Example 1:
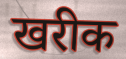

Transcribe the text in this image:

खरीक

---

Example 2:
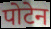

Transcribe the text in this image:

पोटेन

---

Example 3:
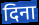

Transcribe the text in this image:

दिना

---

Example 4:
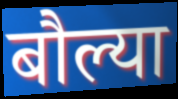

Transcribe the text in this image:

बौल्या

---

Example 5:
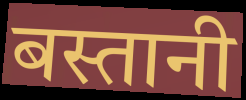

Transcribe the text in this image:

बस्तानी